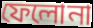
ফেলোনা